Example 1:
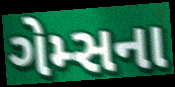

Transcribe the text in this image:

ગેમ્સના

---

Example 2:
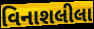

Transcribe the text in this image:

વિનાશલીલા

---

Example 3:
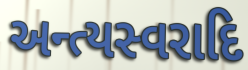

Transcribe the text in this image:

અન્ત્યસ્વરાદિ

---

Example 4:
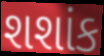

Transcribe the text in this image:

શશાંક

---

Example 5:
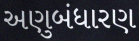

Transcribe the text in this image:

અણુબંધારણ